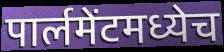
पार्लमेंटमध्येच